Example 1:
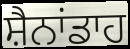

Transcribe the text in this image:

ਸ਼ੈਨਾਂਡਾਹ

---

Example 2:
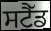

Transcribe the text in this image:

ਸਟੈੱਡ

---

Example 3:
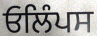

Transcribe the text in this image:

ਓਲਿੰਪਸ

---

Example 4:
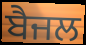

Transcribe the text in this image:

ਬੈਜਲ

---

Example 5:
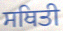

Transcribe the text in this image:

ਸਥਿਤੀ